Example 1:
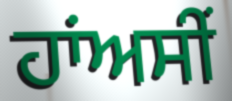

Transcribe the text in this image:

ਹਾਂਅਸੀਂ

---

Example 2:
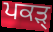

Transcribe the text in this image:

ਪਕੜ੍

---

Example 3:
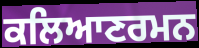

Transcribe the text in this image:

ਕਲਿਆਣਰਮਨ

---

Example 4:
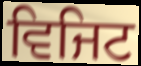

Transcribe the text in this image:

ਵਿਜਿਟ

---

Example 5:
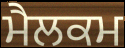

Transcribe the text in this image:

ਮੈਲਕਮ